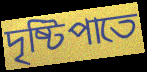
দৃষ্টিপাতে